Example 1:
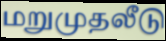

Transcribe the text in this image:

மறுமுதலீடு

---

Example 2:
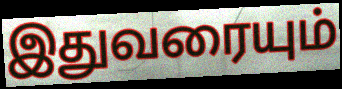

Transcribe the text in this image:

இதுவரையும்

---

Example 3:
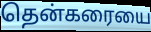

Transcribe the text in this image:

தென்கரையை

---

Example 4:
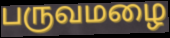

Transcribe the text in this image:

பருவமழை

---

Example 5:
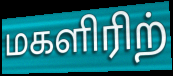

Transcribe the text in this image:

மகளிரிற்